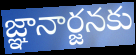
జ్ఞానార్జనకు